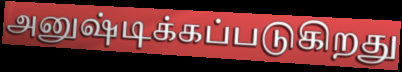
அனுஷ்டிக்கப்படுகிறது